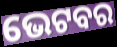
ଭେଟବର